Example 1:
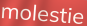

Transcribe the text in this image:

molestie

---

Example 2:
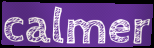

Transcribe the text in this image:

calmer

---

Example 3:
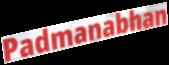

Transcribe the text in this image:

Padmanabhan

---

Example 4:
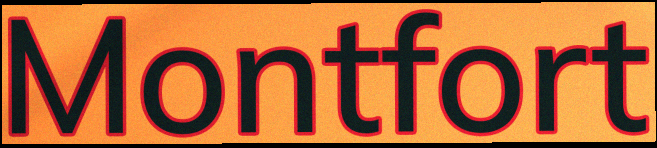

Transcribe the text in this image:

Montfort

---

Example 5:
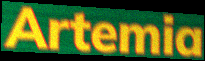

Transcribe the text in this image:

Artemia